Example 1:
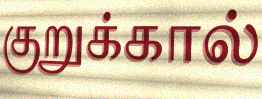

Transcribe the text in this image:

குறுக்கால்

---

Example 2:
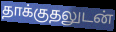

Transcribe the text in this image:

தாக்குதலுடன்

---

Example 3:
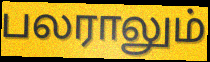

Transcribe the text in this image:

பலராலும்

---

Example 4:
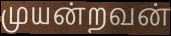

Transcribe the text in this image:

முயன்றவன்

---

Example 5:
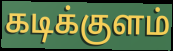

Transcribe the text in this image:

கடிக்குளம்